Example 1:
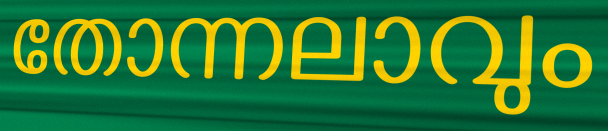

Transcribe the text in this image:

തോന്നലാവും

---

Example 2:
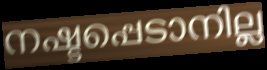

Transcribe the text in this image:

നഷ്ടപ്പെടാനില്ല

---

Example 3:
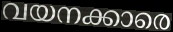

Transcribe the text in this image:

വയനക്കാരെ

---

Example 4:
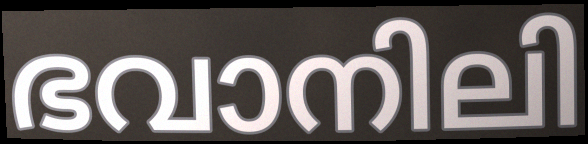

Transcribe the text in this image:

ഭവാനിലി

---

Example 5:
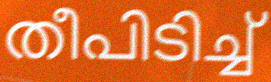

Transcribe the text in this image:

തീപിടിച്ച്